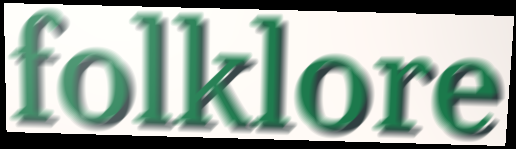
folklore